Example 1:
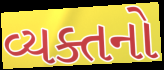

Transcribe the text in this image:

વ્યક્તનો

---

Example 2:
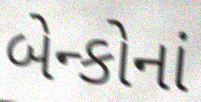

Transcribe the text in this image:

બેન્કોનાં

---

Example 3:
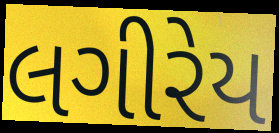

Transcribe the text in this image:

લગીરેય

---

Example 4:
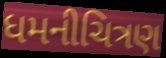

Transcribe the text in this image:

ધમનીચિત્રણ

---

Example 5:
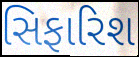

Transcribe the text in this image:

સિફારિશ